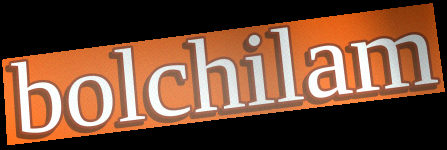
bolchilam